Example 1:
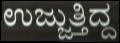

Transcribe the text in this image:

ಉಜ್ಜುತ್ತಿದ್ದ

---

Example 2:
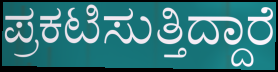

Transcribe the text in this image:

ಪ್ರಕಟಿಸುತ್ತಿದ್ದಾರೆ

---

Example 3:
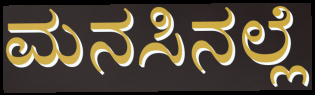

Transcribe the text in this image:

ಮನಸಿನಲ್ಲೆ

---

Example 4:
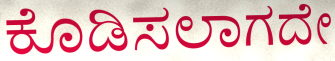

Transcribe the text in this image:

ಕೊಡಿಸಲಾಗದೇ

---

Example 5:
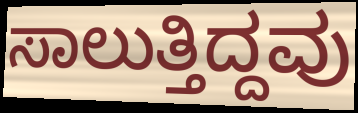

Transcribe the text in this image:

ಸಾಲುತ್ತಿದ್ದವು